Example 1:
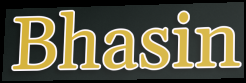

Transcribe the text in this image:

Bhasin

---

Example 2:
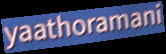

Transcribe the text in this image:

yaathoramani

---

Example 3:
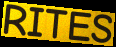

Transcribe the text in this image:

RITES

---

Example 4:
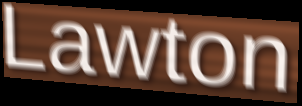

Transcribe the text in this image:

Lawton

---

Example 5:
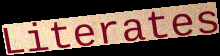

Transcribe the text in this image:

Literates